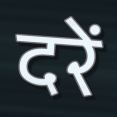
दरें